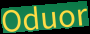
Oduor